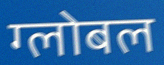
ग्लोबल